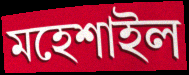
মহেশাইল